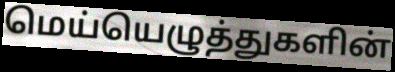
மெய்யெழுத்துகளின்